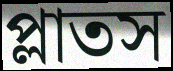
প্লাতস